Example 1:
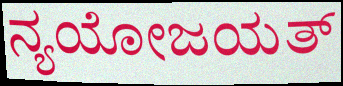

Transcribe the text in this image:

ನ್ಯಯೋಜಯತ್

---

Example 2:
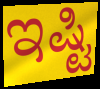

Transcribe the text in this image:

ಇಷ್ಟಿ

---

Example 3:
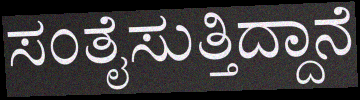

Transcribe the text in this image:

ಸಂತೈಸುತ್ತಿದ್ದಾನೆ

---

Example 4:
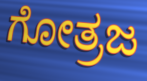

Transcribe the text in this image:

ಗೋತ್ರಜ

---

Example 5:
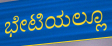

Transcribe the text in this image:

ಭೇಟಿಯಲ್ಲೂ